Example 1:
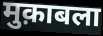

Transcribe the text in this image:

मुक़ाबला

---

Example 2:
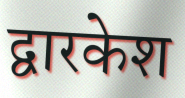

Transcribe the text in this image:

द्वारकेश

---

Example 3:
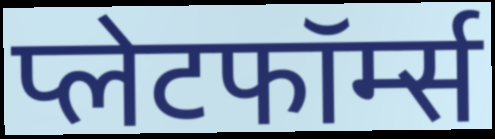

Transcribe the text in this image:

प्लेटफॉर्म्स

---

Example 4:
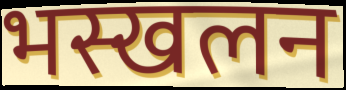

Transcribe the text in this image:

भस्खलन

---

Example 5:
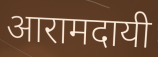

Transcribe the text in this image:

आरामदायी